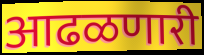
आढळणारी